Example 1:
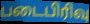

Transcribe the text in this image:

படைபிரிவு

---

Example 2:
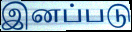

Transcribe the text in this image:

இனப்படு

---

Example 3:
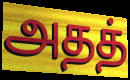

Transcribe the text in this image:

அதத்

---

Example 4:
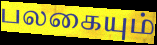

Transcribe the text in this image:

பலகையும்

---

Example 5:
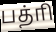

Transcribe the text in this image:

பத்ரி